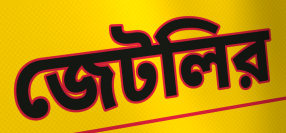
জেটলির